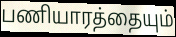
பணியாரத்தையும்